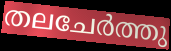
തലചേർത്തു